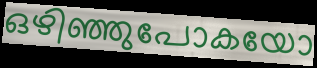
ഒഴിഞ്ഞുപോകയോ